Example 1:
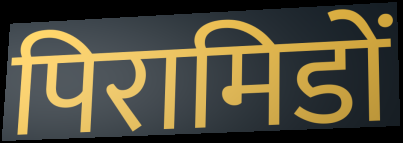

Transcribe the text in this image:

पिरामिडों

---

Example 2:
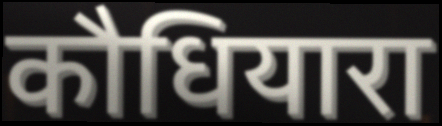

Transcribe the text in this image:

कौधियारा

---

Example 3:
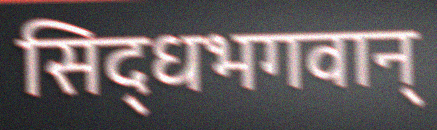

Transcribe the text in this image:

सिद्धभगवान्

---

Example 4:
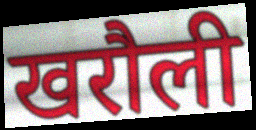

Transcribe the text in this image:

खरौली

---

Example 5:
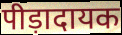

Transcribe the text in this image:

पीड़ादायक